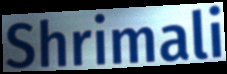
Shrimali